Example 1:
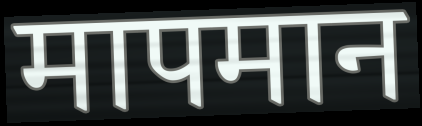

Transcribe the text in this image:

मापमान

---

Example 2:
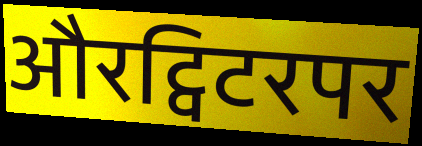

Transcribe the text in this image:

औरट्विटरपर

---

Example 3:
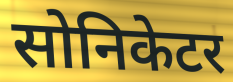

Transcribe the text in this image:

सोनिकेटर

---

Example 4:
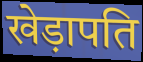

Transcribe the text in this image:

खेड़ापति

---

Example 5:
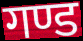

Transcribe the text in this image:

गण्ड